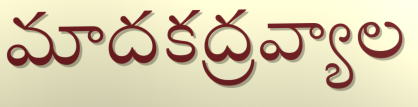
మాదకద్రవ్యాల